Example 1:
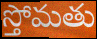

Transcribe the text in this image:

స్తోమతు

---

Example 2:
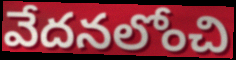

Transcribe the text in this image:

వేదనలోంచి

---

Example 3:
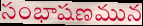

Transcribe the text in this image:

సంభాషణమున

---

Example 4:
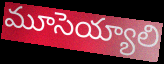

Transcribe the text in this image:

మూసెయ్యాలి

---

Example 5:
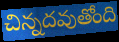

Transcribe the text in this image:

చిన్నదవుతోంది